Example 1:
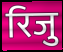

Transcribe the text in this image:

रिजु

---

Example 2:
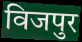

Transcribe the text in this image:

विजपुर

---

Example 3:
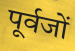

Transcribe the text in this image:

पूर्वजों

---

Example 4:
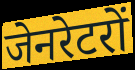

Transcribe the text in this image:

जेनरेटरों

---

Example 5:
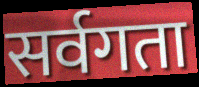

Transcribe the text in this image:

सर्वगता